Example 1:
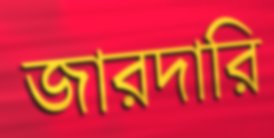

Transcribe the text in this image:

জারদারি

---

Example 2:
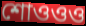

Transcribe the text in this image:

শোওওও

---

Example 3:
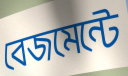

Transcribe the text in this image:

বেজমেন্টে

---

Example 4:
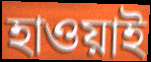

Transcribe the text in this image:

হাওয়াই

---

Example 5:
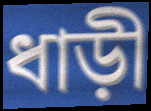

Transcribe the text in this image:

ধাড়ী